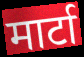
मार्टा